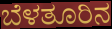
ಬೆಳತೂರಿನ